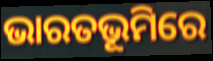
ଭାରତଭୂମିରେ